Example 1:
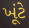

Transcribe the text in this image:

ખૂંટે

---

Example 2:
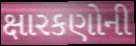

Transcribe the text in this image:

ક્ષારકણોની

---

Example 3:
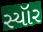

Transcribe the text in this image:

સ્યૉર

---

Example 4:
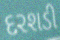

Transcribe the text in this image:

દરશડી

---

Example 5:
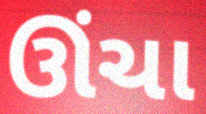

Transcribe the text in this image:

ઊંચા